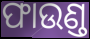
ଫାଉଣ୍ଡ